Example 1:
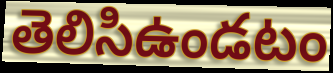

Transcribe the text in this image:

తెలిసిఉండటం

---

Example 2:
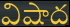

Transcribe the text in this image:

విషాద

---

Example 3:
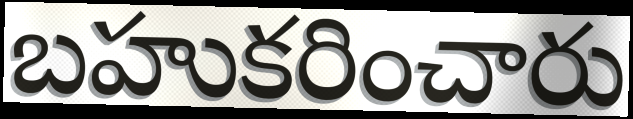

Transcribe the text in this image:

బహుకరించారు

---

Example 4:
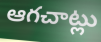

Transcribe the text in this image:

ఆగచాట్లు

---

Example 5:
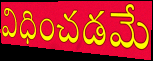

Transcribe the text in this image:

విధించడమే